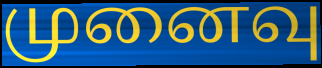
முனைவு